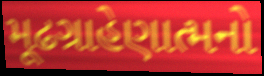
મૂઢગ્રાહેણાત્મનો